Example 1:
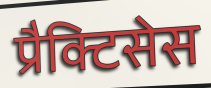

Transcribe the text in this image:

प्रैक्टिसेस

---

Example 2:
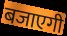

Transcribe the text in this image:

बजाएगी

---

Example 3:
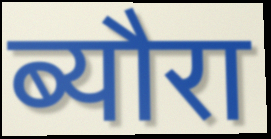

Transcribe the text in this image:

ब्यौरा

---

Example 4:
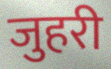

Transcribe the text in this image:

जुहरी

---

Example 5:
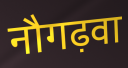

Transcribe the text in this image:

नौगढ़वा